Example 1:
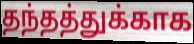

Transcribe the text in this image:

தந்தத்துக்காக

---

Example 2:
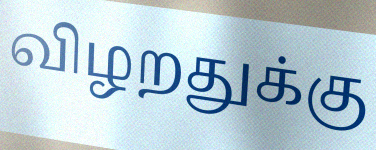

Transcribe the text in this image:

விழறதுக்கு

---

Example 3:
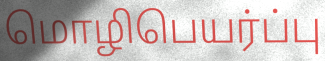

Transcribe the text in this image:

மொழிபெயர்ப்பு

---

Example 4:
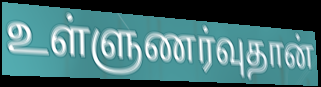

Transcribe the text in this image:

உள்ளுணர்வுதான்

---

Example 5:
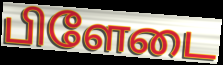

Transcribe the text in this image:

பிளேடை